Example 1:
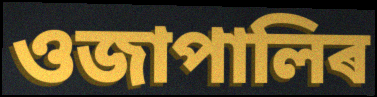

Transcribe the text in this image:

ওজাপালিৰ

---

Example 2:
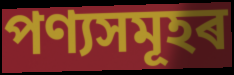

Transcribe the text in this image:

পণ্যসমূহৰ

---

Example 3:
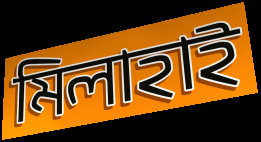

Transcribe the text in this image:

মিলাহাই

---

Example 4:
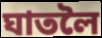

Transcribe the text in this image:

ঘাতলৈ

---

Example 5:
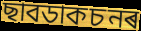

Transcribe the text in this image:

ছাবডাকচনৰ